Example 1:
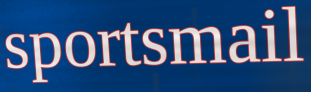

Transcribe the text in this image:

sportsmail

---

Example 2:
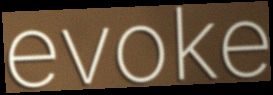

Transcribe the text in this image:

evoke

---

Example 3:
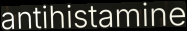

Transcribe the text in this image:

antihistamine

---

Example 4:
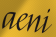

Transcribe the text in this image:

aeni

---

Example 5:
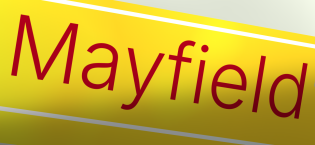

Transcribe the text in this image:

Mayfield